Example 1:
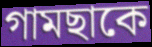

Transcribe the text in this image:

গামছাকে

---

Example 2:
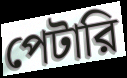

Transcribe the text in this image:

পেটারি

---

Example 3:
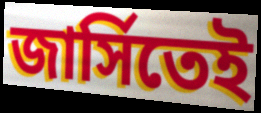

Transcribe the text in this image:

জার্সিতেই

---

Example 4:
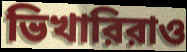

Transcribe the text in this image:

ভিখারিরাও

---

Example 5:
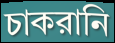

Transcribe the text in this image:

চাকরানি